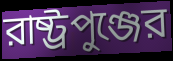
রাষ্ট্রপুঞ্জের